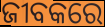
ଜୀବକରେ